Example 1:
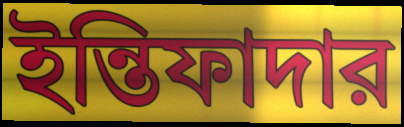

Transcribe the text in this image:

ইন্তিফাদার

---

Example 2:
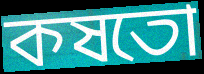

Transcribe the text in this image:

কষতো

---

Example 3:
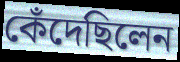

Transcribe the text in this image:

কেঁদেছিলেন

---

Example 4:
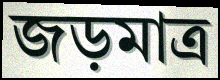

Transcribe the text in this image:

জড়মাত্র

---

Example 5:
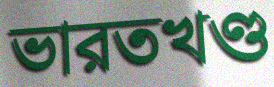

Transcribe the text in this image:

ভারতখণ্ড